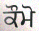
ਕੌਮੋ